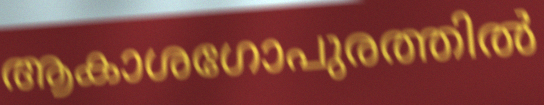
ആകാശഗോപുരത്തിൽ